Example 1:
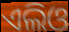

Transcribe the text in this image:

ଏଲିଓ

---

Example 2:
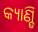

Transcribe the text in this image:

କ୍ୟାଣ୍ଡି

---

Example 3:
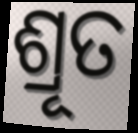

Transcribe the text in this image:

ଶ୍ରୂତ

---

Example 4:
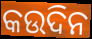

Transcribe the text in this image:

କଉଦିନ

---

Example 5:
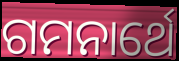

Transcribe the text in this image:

ଗମନାର୍ଥେ